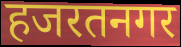
हजरतनगर